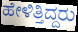
ಹೇಳಿತ್ತಿದ್ದರು